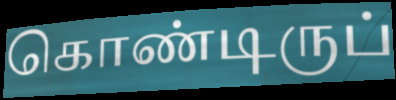
கொண்டிருப்